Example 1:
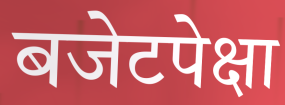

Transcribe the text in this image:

बजेटपेक्षा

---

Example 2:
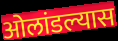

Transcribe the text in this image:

ओलांडल्यास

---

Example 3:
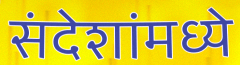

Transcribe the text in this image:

संदेशांमध्ये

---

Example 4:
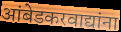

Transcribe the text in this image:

आंबेडकरवाद्यांना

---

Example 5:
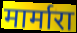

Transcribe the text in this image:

मार्मारा